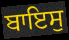
ਬਾਇਸੁ